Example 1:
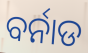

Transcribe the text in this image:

ବର୍ନାଡ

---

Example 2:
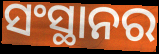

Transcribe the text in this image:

ସଂସ୍ଥାନର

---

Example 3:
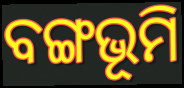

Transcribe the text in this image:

ବଙ୍ଗଭୂମି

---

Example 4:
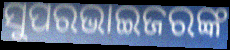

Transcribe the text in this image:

ସୁପରଭାଇଜରଙ୍କ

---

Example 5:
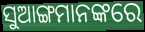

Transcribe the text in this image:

ସୁଆଙ୍ଗମାନଙ୍କରେ